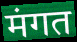
मंगत